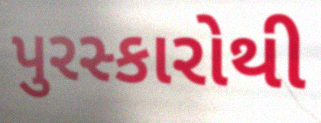
પુરસ્કારોથી